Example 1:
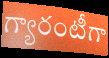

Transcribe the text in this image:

గ్యారంటీగా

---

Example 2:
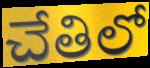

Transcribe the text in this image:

చేతిలో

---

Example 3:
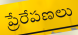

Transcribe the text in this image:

ప్రేరేపణలు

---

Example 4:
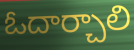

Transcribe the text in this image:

ఓదార్చాలి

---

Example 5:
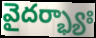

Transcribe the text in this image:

వైదర్భ్యాః